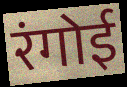
रंगोई